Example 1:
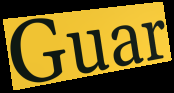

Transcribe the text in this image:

Guar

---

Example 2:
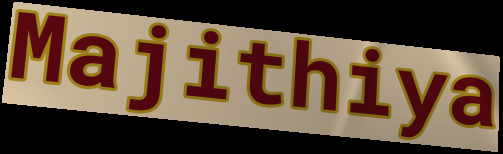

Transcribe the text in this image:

Majithiya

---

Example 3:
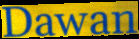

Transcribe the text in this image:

Dawan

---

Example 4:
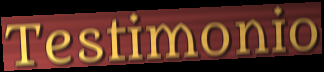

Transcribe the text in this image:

Testimonio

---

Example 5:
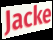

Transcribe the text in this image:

Jacke